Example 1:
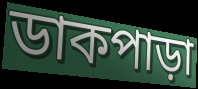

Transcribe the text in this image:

ডাকপাড়া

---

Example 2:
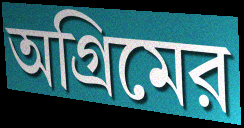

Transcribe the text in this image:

অগ্রিমের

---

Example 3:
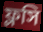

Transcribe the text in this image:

ফ্লসি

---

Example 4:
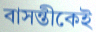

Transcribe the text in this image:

বাসন্তীকেই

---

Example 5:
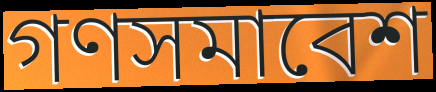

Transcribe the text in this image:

গণসমাবেশ